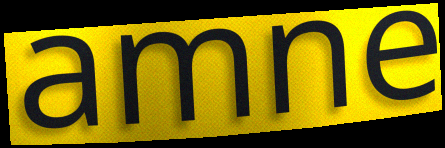
amne